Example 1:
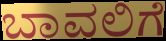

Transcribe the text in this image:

ಬಾವಲಿಗೆ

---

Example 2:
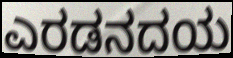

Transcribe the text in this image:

ಎರಡನದಯ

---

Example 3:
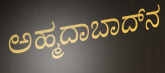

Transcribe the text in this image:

ಅಹ್ಮದಾಬಾದ್‌ನ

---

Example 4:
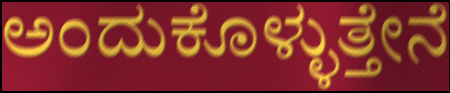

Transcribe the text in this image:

ಅಂದುಕೊಳ್ಳುತ್ತೇನೆ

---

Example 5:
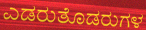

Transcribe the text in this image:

ಎಡರುತೊಡರುಗಳ